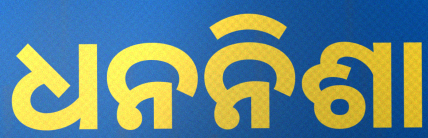
ଧନନିଶା